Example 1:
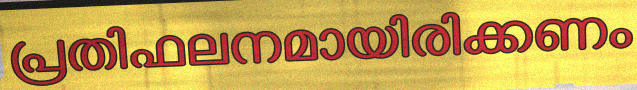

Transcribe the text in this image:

പ്രതിഫലനമായിരിക്കണം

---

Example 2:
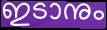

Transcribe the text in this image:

ഇടാനും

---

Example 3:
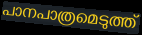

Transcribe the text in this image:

പാനപാത്രമെടുത്ത്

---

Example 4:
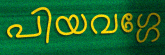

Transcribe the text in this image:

പിയവഗ്ഗേ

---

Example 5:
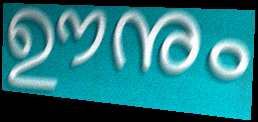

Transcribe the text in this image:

ഊനും